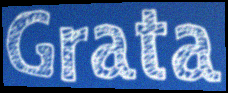
Grata